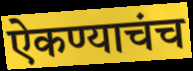
ऐकण्याचंच